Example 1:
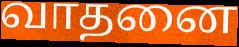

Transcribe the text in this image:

வாதனை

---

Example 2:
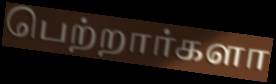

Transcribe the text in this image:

பெற்றார்களா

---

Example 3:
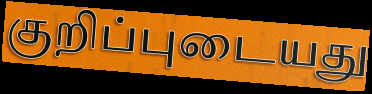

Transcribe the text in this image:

குறிப்புடையது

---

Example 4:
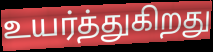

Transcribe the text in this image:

உயர்த்துகிறது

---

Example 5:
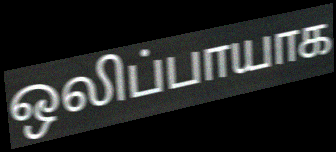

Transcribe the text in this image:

ஒலிப்பாயாக